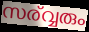
സര്വ്വരും